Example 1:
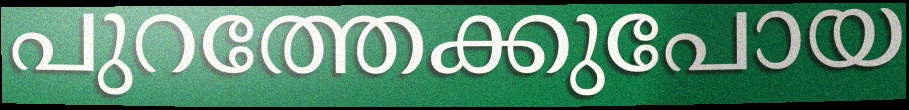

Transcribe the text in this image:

പുറത്തേക്കുപോയ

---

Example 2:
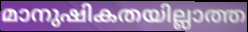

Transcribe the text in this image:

മാനുഷികതയില്ലാത്ത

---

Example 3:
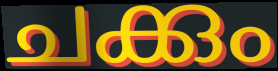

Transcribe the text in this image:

ചക്കും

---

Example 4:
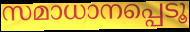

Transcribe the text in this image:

സമാധാനപ്പെടൂ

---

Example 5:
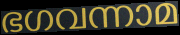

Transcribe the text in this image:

ഭഗവന്നാമ